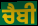
ਚੈਬੀ